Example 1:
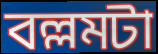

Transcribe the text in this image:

বল্লমটা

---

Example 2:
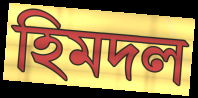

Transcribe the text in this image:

হিমদল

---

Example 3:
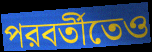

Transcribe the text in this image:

পরবর্তীতেও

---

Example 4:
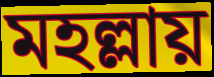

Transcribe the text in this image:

মহল্লায়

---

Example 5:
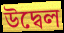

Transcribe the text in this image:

উদ্বেল